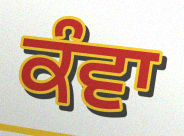
ਕੰਵਾ